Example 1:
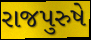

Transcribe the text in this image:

રાજપુરુષે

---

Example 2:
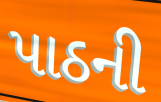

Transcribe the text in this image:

પાઠની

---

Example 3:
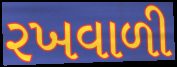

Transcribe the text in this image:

રખવાળી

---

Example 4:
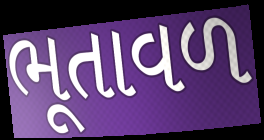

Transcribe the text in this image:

ભૂતાવળ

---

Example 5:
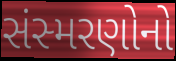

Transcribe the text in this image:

સંસ્મરણોનો